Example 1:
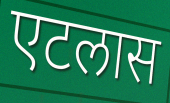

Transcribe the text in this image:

एटलास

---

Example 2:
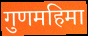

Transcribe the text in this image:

गुणमहिमा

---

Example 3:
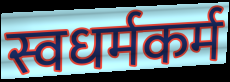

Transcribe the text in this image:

स्वधर्मकर्म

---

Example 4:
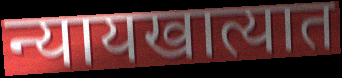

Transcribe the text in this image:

न्यायखात्यात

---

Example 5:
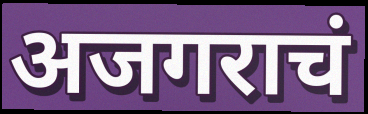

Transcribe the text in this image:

अजगराचं